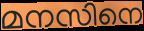
മനസിനെ